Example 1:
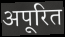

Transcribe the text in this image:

अपूरित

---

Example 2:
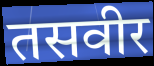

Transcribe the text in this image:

तसवीर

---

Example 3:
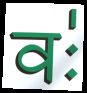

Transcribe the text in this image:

वः॑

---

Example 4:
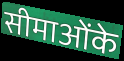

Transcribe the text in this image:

सीमाओंके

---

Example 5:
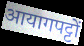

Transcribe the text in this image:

आयागपट्टों